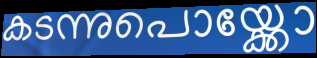
കടന്നുപൊയ്ക്കോ